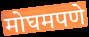
मोघमपणे